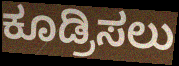
ಕೂಡ್ರಿಸಲು